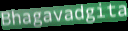
Bhagavadgita